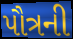
પૌત્રની